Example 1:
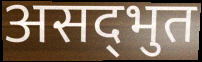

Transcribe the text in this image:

असद्भुत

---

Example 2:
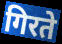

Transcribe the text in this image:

गिरते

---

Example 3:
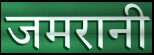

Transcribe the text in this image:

जमरानी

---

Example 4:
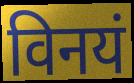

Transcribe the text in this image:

विनयं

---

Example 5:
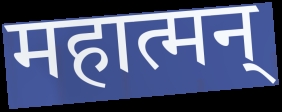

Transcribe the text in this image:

महात्मन्